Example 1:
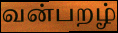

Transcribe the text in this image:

வன்பறழ்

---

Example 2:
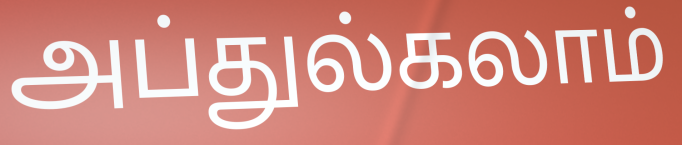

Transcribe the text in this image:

அப்துல்கலாம்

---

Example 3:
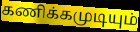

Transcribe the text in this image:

கணிக்கமுடியும்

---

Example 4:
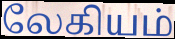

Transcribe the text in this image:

லேகியம்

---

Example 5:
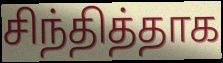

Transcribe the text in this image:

சிந்தித்தாக